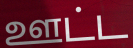
ஊட்ட